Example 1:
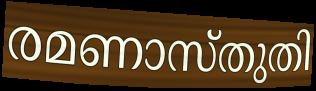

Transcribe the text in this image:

രമണാസ്തുതി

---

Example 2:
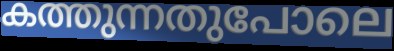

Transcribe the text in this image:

കത്തുന്നതുപോലെ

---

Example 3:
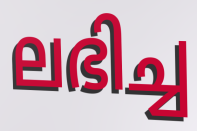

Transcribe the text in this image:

ലഭിച്ച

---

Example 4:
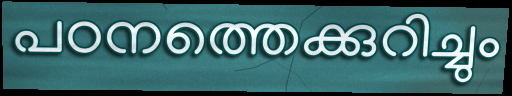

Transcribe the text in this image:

പഠനത്തെക്കുറിച്ചും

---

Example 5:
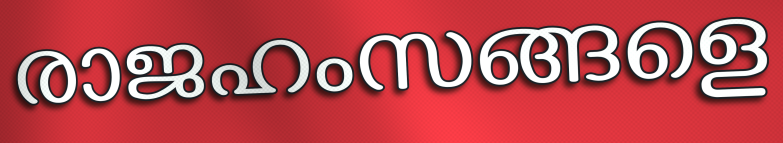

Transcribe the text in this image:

രാജഹംസങ്ങളെ